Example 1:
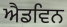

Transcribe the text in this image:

ਐਡਵਿਨ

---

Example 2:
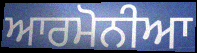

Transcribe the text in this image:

ਆਰਮੋਨੀਆ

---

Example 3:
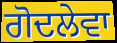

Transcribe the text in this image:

ਗੋਦਲੇਵਾ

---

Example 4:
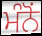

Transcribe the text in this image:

ਮੰਨੋਂ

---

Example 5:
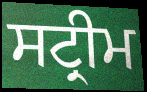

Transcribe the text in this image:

ਸਟ੍ਰੀਮ